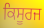
ਕਿਸੂਰਜ